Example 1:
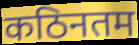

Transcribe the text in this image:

कठिनतम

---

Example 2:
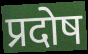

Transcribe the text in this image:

प्रदोष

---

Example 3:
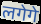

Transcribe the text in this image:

लगेगे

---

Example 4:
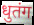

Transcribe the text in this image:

धुतंग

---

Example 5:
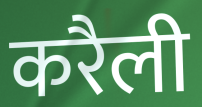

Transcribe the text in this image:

करैली